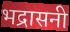
भद्रासनी